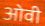
ओवी